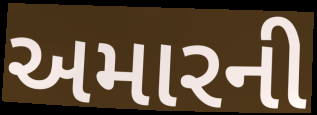
અમારની